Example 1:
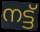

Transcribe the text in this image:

നട്ട്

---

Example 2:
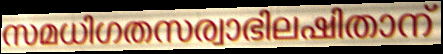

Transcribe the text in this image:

സമധിഗതസര്വാഭിലഷിതാന്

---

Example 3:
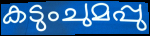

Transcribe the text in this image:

കടുംചുമപ്പു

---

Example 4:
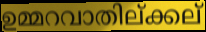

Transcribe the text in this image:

ഉമ്മറവാതില്ക്കല്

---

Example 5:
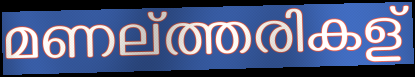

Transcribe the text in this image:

മണല്ത്തരികള്